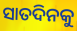
ସାତଦିନକୁ